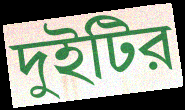
দুইটির